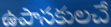
ఉపాసకులచే